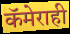
कॅमेराही